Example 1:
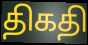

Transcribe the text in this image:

திகதி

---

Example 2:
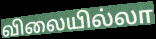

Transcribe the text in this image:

விலையில்லா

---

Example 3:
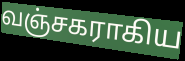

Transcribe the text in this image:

வஞ்சகராகிய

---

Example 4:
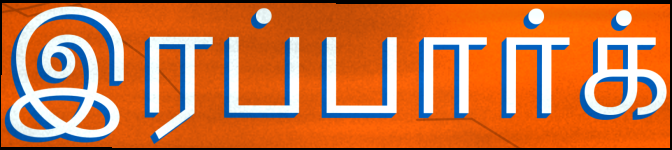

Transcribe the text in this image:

இரப்பார்க்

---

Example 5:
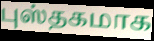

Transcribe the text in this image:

புஸ்தகமாக